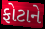
ફોટાને